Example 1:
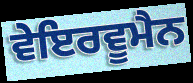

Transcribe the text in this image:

ਵੇਇਰਵੂਮੈਨ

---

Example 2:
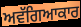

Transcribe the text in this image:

ਅਵੱਗਿਆਕਾਰ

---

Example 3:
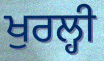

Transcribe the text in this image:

ਖੁਰਲ੍ਹੀ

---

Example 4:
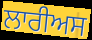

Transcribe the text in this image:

ਲਾਰੀਅਸ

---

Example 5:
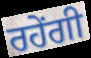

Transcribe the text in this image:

ਰਹੇਂਗੀ